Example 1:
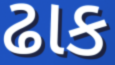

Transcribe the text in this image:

ઢાક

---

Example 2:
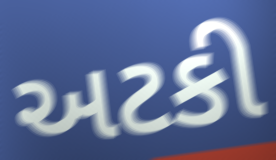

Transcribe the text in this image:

અટકી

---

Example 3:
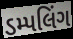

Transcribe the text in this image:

ડમ્પલિંગ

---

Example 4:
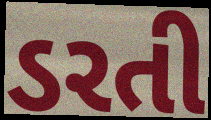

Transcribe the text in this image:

ડરતી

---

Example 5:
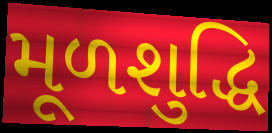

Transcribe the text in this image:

મૂળશુદ્ધિ